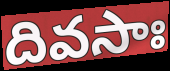
దివసాః